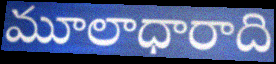
మూలాధారాది